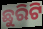
ଛୁରିଟି